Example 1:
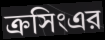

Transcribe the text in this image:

ক্রসিংএর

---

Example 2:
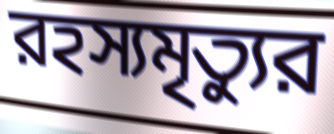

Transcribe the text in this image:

রহস্যমৃত্যুর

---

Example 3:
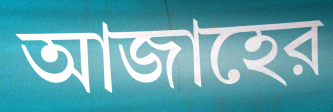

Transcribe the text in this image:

আজাহের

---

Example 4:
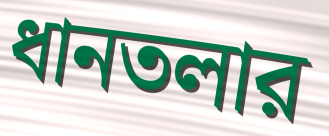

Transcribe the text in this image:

ধানতলার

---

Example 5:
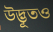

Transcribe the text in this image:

উদ্ভূতও